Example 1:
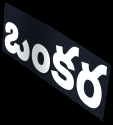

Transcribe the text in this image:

ఒంకర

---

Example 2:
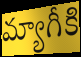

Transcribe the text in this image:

మ్యాగీకి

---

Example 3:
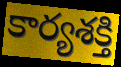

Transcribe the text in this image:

కార్యశక్తి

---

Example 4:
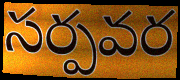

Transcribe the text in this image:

సర్పవర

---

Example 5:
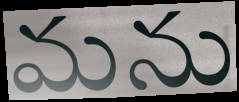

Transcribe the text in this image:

మను